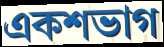
একশভাগ